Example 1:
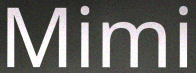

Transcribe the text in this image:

Mimi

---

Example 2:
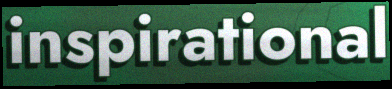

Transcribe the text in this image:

inspirational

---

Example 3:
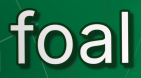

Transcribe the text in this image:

foal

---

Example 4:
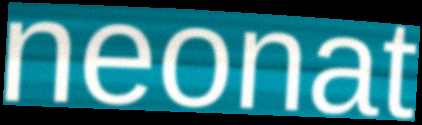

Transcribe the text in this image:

neonat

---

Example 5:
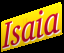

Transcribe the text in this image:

Isaia